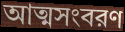
আত্মসংবরণ